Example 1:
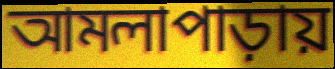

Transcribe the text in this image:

আমলাপাড়ায়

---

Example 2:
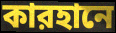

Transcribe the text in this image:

কারহানে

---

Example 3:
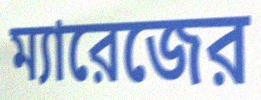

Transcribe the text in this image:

ম্যারেজের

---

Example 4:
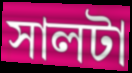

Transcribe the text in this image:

সালটা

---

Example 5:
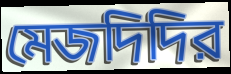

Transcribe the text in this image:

মেজদিদির